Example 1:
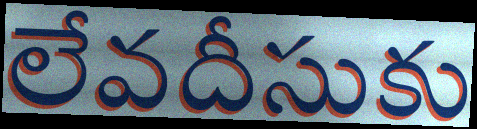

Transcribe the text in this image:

లేవదీసుకు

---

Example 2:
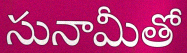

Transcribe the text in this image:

సునామీతో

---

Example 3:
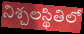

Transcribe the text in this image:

నిశ్చలస్థితిలో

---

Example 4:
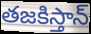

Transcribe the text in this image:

తజకిస్తాన్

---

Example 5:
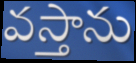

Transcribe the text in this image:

వస్తాను